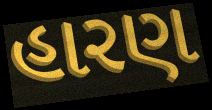
હારણ